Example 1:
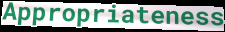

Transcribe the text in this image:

Appropriateness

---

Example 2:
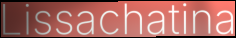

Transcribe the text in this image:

Lissachatina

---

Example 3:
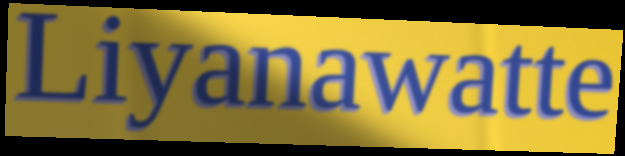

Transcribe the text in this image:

Liyanawatte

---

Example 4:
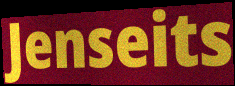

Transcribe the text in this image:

Jenseits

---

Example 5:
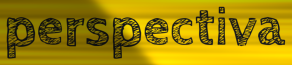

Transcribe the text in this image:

perspectiva